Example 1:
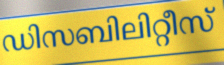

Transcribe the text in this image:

ഡിസബിലിറ്റീസ്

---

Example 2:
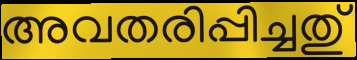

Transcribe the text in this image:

അവതരിപ്പിച്ചതു്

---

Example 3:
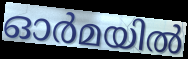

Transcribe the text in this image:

ഓർമയിൽ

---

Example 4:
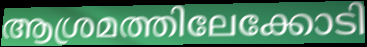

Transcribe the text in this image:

ആശ്രമത്തിലേക്കോടി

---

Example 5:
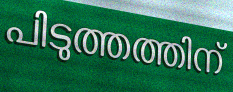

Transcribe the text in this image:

പിടുത്തത്തിന്